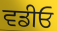
ਵਡੀਓ